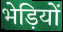
भेड़ियों